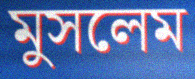
মুসলেম